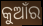
କୁଆଁର